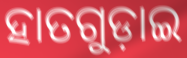
ହାତଗୁଡ଼ାଇ